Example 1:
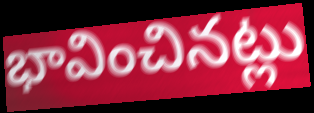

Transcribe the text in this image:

భావించినట్లు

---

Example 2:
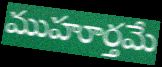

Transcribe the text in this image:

ముహూర్తమే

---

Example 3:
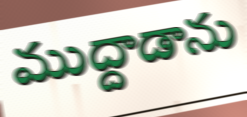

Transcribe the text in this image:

ముద్దాడాను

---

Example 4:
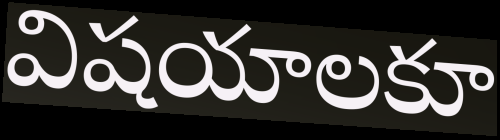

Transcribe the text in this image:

విషయాలకూ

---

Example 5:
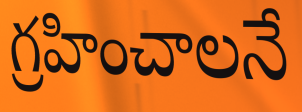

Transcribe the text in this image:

గ్రహించాలనే